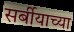
सर्बीयाच्या